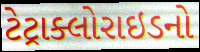
ટેટ્રાક્લોરાઇડનો